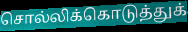
சொல்லிக்கொடுத்துக்